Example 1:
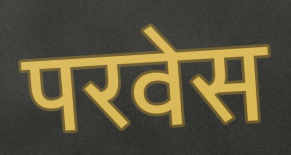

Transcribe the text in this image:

परवेस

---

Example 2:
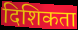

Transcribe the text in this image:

दिशिकता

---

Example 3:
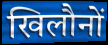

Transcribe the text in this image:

खिलौनों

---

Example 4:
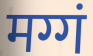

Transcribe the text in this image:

मग्गं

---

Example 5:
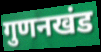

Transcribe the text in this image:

गुणनखंड